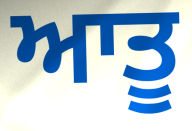
ਆਤੂ